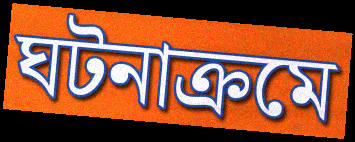
ঘটনাক্ৰমে